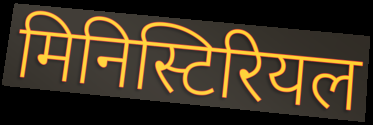
मिनिस्टिरियल